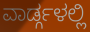
ವಾರ್ಡ್ಗಳಲ್ಲಿ